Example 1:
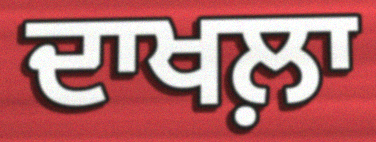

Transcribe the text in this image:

ਦਾਖਲ਼ਾ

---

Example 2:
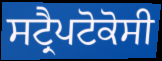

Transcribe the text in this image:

ਸਟ੍ਰੈਪਟੋਕੋਸੀ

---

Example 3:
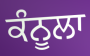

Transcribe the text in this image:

ਕੰਨੂਲਾ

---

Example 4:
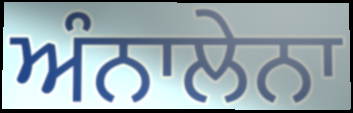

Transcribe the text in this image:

ਅੰਨਾਲੇਨਾ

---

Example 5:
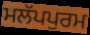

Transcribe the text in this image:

ਮਲੱਪਪੁਰਮ